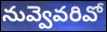
నువ్వెవరివో